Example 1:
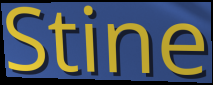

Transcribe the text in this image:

Stine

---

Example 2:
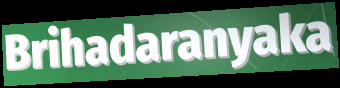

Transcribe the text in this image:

Brihadaranyaka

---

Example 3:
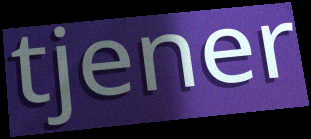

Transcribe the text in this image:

tjener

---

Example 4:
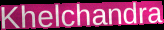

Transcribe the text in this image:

Khelchandra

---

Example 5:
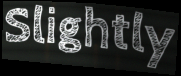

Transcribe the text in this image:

Slightly